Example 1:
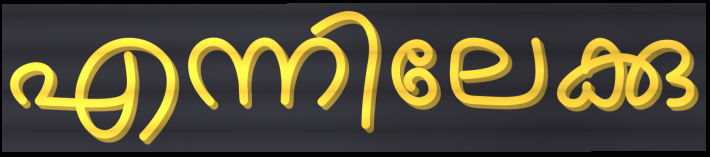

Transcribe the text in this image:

എന്നിലേക്കു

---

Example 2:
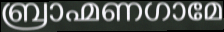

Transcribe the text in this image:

ബ്രാഹ്മണഗാമേ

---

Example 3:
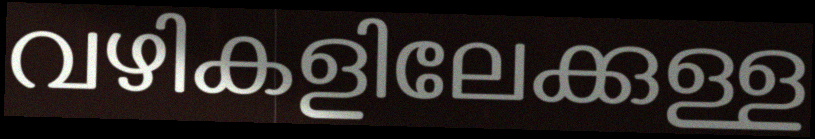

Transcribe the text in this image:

വഴികളിലേക്കുള്ള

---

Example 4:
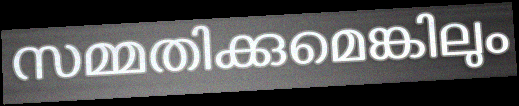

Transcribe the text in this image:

സമ്മതിക്കുമെങ്കിലും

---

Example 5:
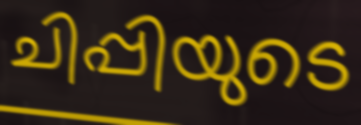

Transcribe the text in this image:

ചിപ്പിയുടെ